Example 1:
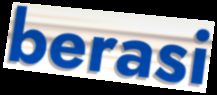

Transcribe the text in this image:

berasi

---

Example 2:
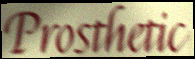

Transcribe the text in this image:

Prosthetic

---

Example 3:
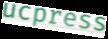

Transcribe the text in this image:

ucpress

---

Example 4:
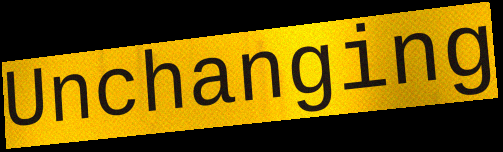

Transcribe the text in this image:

Unchanging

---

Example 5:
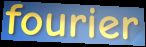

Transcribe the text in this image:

fourier